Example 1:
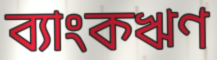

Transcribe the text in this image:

ব্যাংকঋণ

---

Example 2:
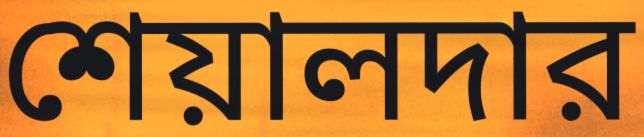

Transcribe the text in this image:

শেয়ালদার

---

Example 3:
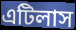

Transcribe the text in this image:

এটিলাস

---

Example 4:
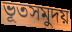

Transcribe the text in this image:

ভূতসমুদয়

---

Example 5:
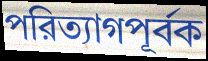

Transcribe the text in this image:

পরিত্যাগপূর্বক